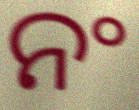
ନଂ